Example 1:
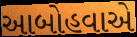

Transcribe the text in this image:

આબોહવાએ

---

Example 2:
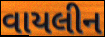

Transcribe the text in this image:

વાયલીન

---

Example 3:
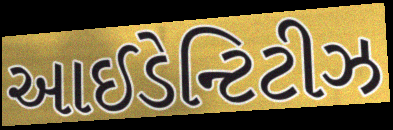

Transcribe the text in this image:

આઈડેન્ટિટીઝ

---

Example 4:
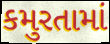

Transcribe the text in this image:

કમુરતામાં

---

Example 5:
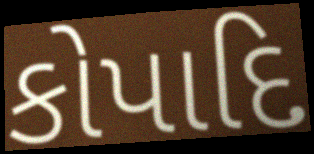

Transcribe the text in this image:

કોપાદિ